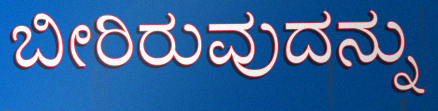
ಬೀರಿರುವುದನ್ನು